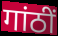
गांठीं